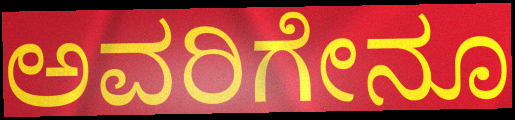
ಅವರಿಗೇನೂ